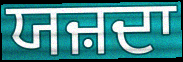
ਯਜ਼ਦਾ